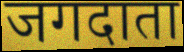
जगदाता